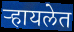
ऱ्हायलेत